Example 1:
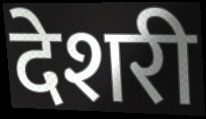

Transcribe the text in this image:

देशरी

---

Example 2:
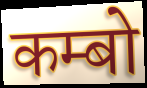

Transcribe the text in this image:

कम्बो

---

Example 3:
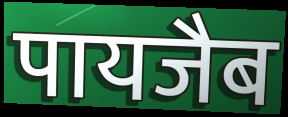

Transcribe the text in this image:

पायजैब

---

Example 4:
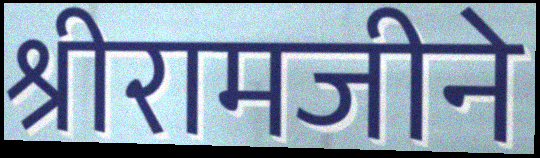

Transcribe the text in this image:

श्रीरामजीने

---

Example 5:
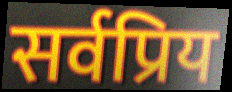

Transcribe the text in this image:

सर्वप्रिय